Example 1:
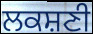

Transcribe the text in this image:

ਲਕਸ਼ਣੀ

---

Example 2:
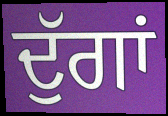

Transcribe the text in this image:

ਦੁੱਗਾਂ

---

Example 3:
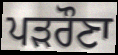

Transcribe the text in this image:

ਪੜਰੌਣਾ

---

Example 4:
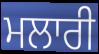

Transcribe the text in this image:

ਮਲਾਰੀ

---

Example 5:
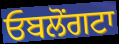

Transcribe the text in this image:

ਓਬਲੋਂਗਟਾ